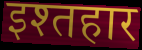
इश्तहार